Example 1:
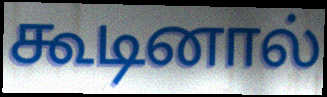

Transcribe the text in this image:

கூடினால்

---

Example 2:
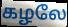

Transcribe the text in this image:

கழலே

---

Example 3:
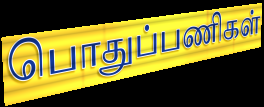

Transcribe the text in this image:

பொதுப்பணிகள்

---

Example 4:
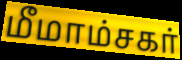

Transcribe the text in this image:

மீமாம்சகர்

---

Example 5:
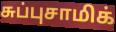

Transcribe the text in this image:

சுப்புசாமிக்